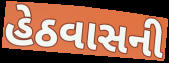
હેઠવાસની